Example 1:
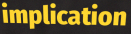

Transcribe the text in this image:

implication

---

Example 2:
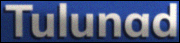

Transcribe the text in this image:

Tulunad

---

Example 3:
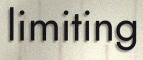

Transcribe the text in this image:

limiting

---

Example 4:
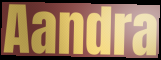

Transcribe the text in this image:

Aandra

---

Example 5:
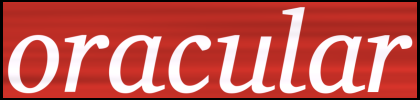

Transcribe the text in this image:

oracular